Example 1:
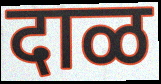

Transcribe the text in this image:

दाळ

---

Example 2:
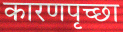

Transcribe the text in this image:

कारणपृच्छा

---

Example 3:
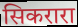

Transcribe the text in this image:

सिकरारा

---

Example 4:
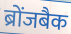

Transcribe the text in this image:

ब्रोंजबैक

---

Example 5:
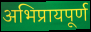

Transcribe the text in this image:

अभिप्रायपूर्ण